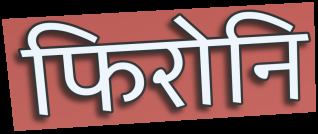
फिरोनि